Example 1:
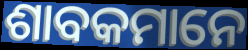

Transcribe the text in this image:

ଶାବକମାନେ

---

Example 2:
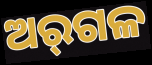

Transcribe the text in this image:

ଅର୍‌ଗଳ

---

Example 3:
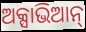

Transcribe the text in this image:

ଅକ୍ସାଭିଆନ୍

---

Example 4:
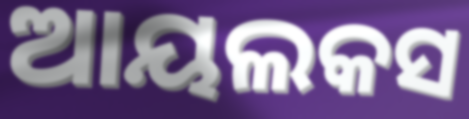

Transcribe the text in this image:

ଆୟଲକସ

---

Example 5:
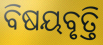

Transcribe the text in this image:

ବିଷୟବୃତ୍ତି